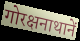
गोरक्षनाथानें